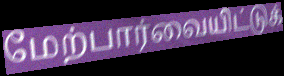
மேற்பார்வையிட்டுக்